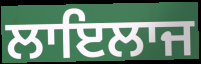
ਲਾਇਲਾਜ